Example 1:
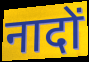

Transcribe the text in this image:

नादों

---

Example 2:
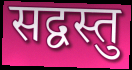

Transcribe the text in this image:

सद्वस्तु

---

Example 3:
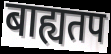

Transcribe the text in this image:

बाह्यतप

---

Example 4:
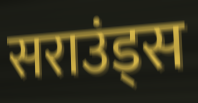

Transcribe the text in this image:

सराउंड्स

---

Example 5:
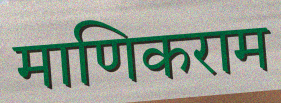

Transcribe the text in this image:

माणिकराम